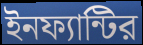
ইনফ্যান্টির